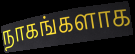
நாகங்களாக